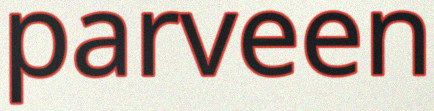
parveen